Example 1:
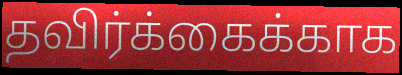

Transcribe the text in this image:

தவிர்க்கைக்காக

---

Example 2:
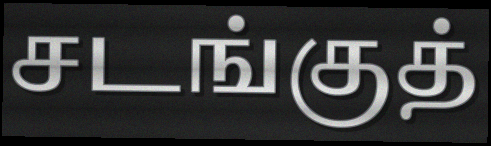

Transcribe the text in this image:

சடங்குத்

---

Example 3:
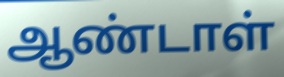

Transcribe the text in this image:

ஆண்டாள்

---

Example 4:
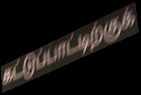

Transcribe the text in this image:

கட்டுப்பாட்டிற்குக்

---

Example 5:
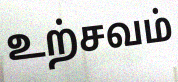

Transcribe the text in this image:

உற்சவம்